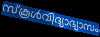
സ്കൂൾവിദ്യാഭ്യാസം